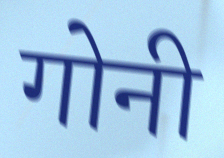
गोनी